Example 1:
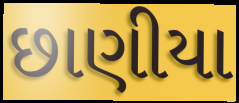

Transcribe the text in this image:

છાણીયા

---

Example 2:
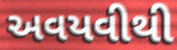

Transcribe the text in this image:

અવયવીથી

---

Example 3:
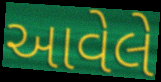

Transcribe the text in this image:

આવેલે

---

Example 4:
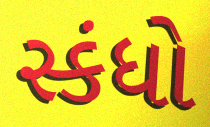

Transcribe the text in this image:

સ્કંધો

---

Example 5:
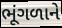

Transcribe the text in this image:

ભૂંગળાને